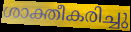
ശാക്തീകരിച്ചു